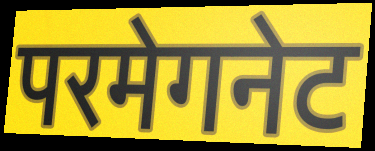
परमेगनेट